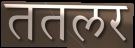
ततलर